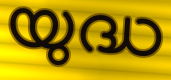
യുദ്ധ